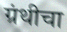
ग्रंथीचा